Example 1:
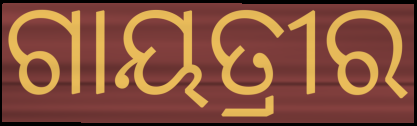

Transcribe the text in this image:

ଗାୟତ୍ରୀର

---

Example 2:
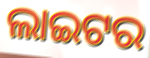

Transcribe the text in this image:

ଲାଇଟର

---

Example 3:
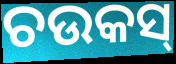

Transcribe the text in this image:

ଚଉକସ୍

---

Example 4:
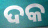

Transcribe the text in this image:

ଦକ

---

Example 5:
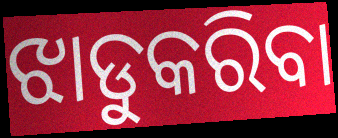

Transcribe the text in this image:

ଝାଡୁକରିବା